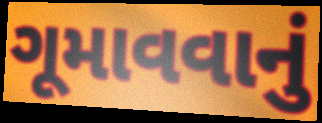
ગૂમાવવાનું